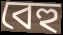
বেহু